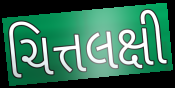
ચિત્તલક્ષી